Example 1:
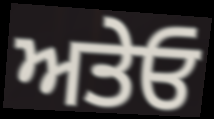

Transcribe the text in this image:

ਅਤੇਓ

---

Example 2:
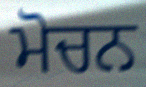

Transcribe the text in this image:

ਮੋਚਨ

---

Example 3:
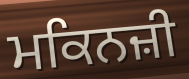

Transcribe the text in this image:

ਮਕਿਨਜ਼ੀ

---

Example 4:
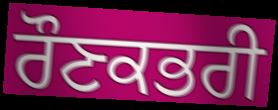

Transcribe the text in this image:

ਰੌਣਕਭਰੀ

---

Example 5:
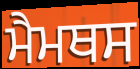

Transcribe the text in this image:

ਮੈਮਥਸ